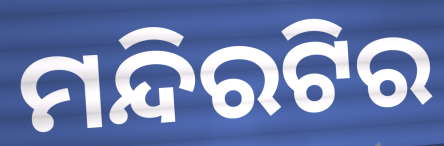
ମନ୍ଦିରଟିର